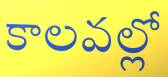
కాలవల్లో